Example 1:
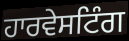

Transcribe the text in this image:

ਹਾਰਵੇਸਟਿੰਗ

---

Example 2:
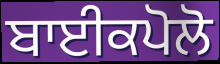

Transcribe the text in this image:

ਬਾਈਕਪੋਲੋ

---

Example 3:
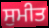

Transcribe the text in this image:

ਸੁਮੀਤ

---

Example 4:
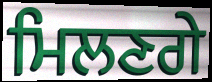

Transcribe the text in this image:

ਮਿਲਣਗੇ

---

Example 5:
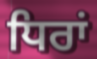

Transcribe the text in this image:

ਧਿਰਾਂ